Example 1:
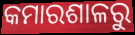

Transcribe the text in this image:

କମାରଶାଳରୁ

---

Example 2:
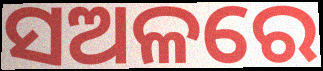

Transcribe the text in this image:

ସଅଳରେ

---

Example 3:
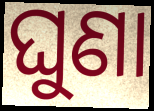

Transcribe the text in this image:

ଘୁଣା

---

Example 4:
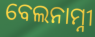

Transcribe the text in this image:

ବେଲନାମ୍ନୀ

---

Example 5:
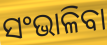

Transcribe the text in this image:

ସଂଭାଳିବା